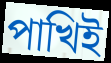
পাখিই